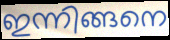
ഇന്നിങ്ങനെ